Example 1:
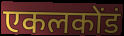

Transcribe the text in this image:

एकलकोंडं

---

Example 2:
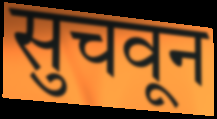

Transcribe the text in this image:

सुचवून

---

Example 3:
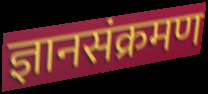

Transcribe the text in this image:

ज्ञानसंक्रमण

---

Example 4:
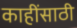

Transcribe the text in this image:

काहींसाठी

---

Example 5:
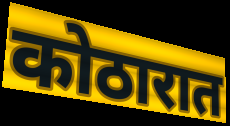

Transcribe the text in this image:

कोठारात